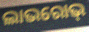
ଲାଭରୋଭ୍